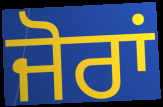
ਜੋਰਾਂ